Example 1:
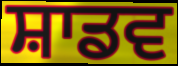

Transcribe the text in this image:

ਸ਼ਾਡਵ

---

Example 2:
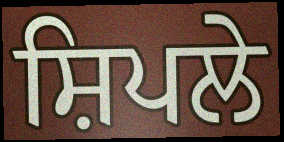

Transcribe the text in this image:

ਸ਼ਿਪਲੇ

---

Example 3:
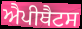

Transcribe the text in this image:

ਐਪੀਥੈਟਸ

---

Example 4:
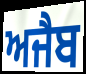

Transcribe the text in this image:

ਅਜੈਬ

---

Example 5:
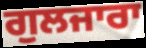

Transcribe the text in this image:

ਗੁਲਜਾਰਾ